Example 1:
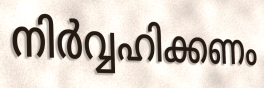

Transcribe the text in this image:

നിർവ്വഹിക്കണം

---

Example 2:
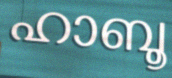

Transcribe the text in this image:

ഹാബൂ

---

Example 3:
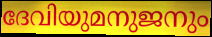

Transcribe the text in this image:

ദേവിയുമനുജനും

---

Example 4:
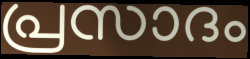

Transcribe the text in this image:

പ്രസാദം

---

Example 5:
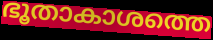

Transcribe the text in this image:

ഭൂതാകാശത്തെ